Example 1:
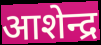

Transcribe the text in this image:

आशेन्द्र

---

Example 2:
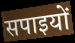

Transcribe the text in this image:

सपाइयों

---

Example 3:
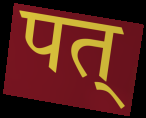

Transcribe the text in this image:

पत्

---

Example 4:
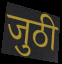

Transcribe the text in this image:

जुठी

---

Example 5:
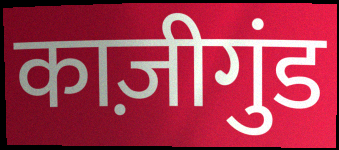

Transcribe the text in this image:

काज़ीगुंड